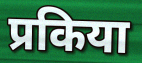
प्रकिया